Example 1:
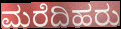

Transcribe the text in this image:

ಮರೆದಿಹರು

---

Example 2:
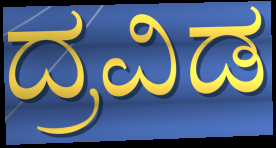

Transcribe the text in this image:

ದ್ರವಿಡ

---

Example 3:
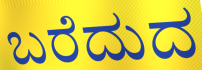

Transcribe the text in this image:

ಬರೆದುದ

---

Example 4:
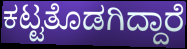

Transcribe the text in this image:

ಕಟ್ಟತೊಡಗಿದ್ದಾರೆ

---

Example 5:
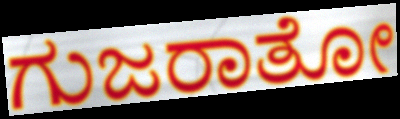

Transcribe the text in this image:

ಗುಜರಾತೋ